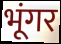
भूंगर